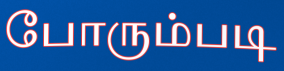
போரும்படி